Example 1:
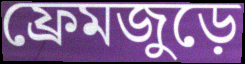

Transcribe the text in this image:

ফ্রেমজুড়ে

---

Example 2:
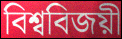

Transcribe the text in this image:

বিশ্ববিজয়ী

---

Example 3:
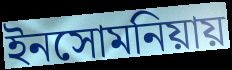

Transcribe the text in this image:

ইনসোমনিয়ায়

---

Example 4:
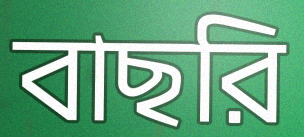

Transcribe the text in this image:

বাছরি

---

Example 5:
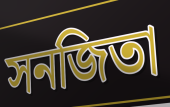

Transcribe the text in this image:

সনজিতা